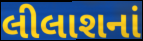
લીલાશનાં